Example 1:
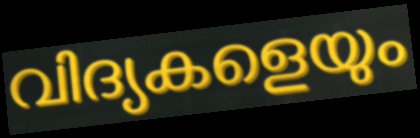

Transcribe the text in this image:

വിദ്യകളെയും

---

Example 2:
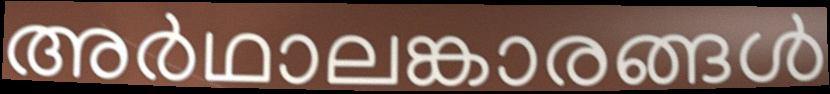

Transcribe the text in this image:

അർഥാലങ്കാരങ്ങൾ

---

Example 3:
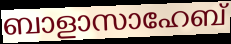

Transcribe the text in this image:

ബാളാസാഹേബ്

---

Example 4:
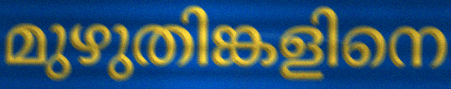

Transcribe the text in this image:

മുഴുതിങ്കളിനെ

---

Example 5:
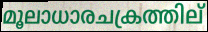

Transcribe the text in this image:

മൂലാധാരചക്രത്തില്